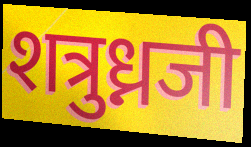
शत्रुध्नजी